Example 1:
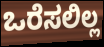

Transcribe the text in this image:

ಒರೆಸಲಿಲ್ಲ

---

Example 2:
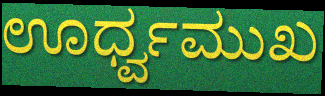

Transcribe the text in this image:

ಊರ್ಧ್ವಮುಖ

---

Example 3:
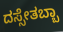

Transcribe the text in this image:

ದಸ್ಸೇತಬ್ಬಾ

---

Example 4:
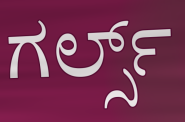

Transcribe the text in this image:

ಗರ್ಲ್ಸ್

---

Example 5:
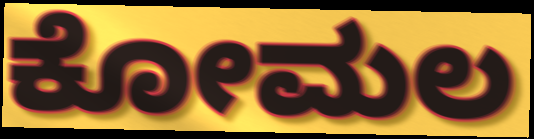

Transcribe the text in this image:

ಕೋಮಲ